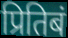
प्रितिबं